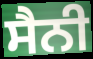
ਸੈਨੀ